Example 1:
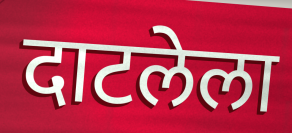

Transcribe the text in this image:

दाटलेला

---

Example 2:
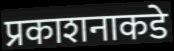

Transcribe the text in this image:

प्रकाशनाकडे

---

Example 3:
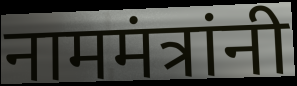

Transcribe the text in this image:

नाममंत्रांनी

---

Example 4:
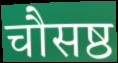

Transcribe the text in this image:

चौसष्ठ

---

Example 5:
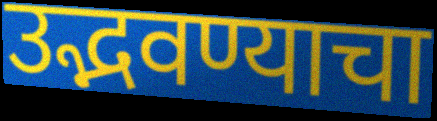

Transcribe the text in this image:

उद्भवण्याचा